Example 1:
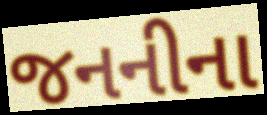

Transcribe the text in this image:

જનનીના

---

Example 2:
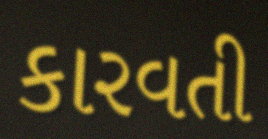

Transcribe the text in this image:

કારવતી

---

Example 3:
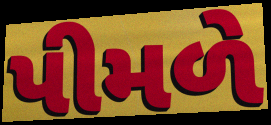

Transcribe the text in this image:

પીમળે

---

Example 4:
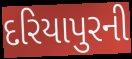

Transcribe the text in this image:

દરિયાપુરની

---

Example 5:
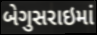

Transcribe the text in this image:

બેગુસરાઇમાં